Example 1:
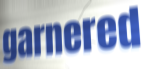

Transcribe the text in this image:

garnered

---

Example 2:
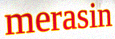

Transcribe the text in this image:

merasin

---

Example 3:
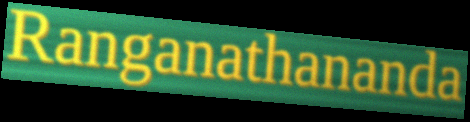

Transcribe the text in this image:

Ranganathananda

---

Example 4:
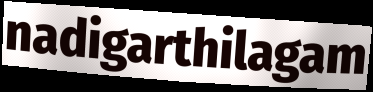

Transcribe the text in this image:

nadigarthilagam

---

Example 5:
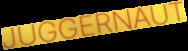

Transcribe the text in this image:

JUGGERNAUT